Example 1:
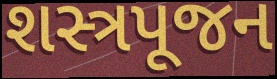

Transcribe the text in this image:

શસ્ત્રપૂજન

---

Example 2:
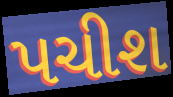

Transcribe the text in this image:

પચીશ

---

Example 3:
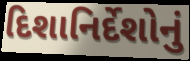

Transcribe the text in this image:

દિશાનિર્દેશોનું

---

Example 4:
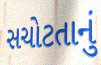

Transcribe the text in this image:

સચોટતાનું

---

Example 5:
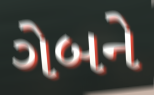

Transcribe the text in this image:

ગેબને